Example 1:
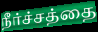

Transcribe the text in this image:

நீர்ச்சத்தை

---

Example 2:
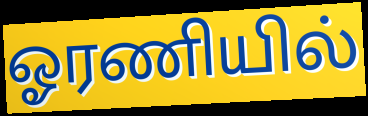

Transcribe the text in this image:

ஓரணியில்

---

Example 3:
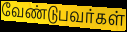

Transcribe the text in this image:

வேண்டுபவர்கள்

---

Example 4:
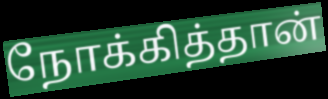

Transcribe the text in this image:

நோக்கித்தான்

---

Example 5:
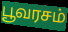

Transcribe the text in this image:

பூவரசம்